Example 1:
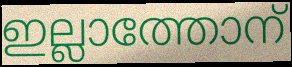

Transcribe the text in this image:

ഇല്ലാത്തോന്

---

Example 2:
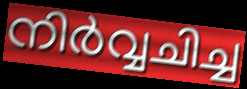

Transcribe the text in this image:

നിർവ്വചിച്ച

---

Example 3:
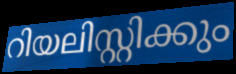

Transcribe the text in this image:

റിയലിസ്റ്റിക്കും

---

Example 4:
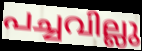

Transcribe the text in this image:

പച്ചവില്ലു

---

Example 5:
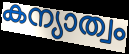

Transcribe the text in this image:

കന്യാത്വം